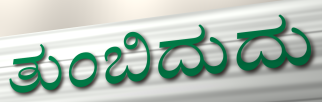
ತುಂಬಿದುದು